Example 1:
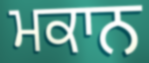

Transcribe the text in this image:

ਮਕਾਨ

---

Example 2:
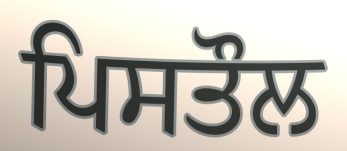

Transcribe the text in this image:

ਪਿਸਤੌਲ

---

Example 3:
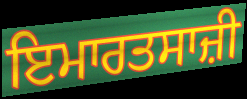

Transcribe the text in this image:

ਇਮਾਰਤਸਾਜ਼ੀ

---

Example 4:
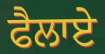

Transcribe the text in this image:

ਫੈਲਾਏ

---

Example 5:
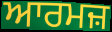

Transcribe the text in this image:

ਆਰਮਜ਼